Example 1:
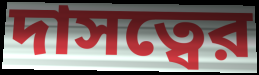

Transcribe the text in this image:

দাসত্বের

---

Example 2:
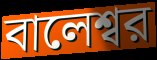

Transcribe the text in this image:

বালেশ্বর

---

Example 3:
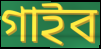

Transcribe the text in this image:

গাইব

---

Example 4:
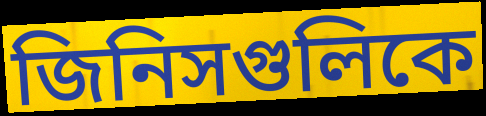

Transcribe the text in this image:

জিনিসগুলিকে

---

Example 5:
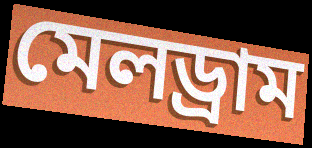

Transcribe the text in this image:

মেলড্রাম